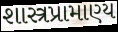
શાસ્ત્રપ્રામાણ્ય